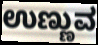
ಉಣ್ಣುವ